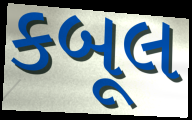
કબૂલ